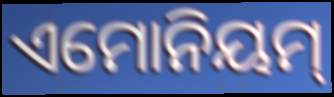
ଏମୋନିୟମ୍